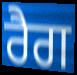
ਰੈਗ